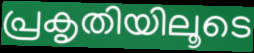
പ്രകൃതിയിലൂടെ